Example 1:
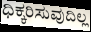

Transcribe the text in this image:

ಧಿಕ್ಕರಿಸುವುದಿಲ್ಲ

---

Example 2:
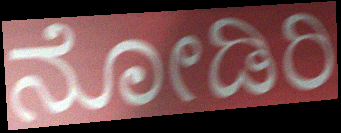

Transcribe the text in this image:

ನೋಡಿರಿ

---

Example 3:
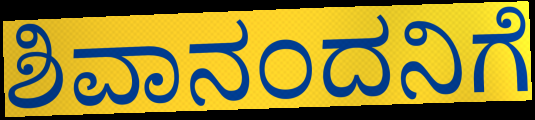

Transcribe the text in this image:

ಶಿವಾನಂದನಿಗೆ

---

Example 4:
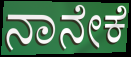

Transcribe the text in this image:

ನಾನೇಕೆ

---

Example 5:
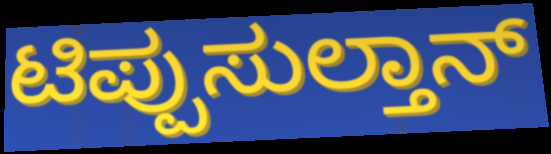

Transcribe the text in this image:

ಟಿಪ್ಪುಸುಲ್ತಾನ್